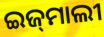
ଇଜ୍‌ମାଲୀ